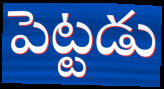
పెట్టడు